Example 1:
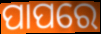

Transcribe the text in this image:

ପାପରେ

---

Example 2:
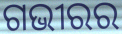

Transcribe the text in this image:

ଗଭୀରର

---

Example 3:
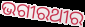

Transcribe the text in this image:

ଭଗୀରଥୀର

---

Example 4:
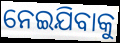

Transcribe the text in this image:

ନେଇଯିବାକୁ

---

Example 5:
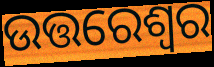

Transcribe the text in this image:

ଉତ୍ତରେଶ୍ୱର